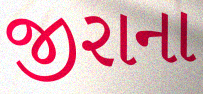
જીરાના